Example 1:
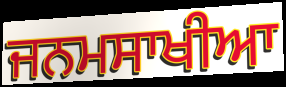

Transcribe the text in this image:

ਜਨਮਸਾਖੀਆ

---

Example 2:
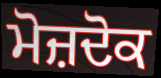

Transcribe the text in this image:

ਮੋਜ਼ਦੋਕ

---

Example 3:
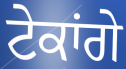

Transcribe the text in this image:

ਟੇਕਾਂਗੇ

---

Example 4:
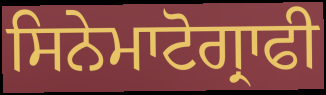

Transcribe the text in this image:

ਸਿਨੇਮਾਟੋਗ੍ਰਾਫੀ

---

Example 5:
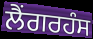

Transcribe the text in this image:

ਲੈਂਗਰਹੰਸ